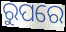
ରୁପରେ